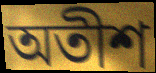
অতীশ